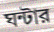
ঘন্টার